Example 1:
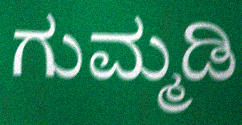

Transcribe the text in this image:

ಗುಮ್ಮಡಿ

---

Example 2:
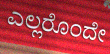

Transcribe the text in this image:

ಎಲ್ಲರೊಂದೇ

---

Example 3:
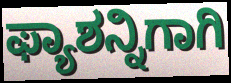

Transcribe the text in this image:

ಫ್ಯಾಶನ್ನಿಗಾಗಿ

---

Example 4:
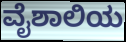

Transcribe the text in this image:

ವೈಶಾಲಿಯ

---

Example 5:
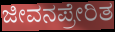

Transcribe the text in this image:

ಜೀವನಪ್ರೇರಿತ